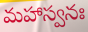
మహాస్వనః